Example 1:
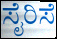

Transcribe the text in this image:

ಸೈರಿಸೆ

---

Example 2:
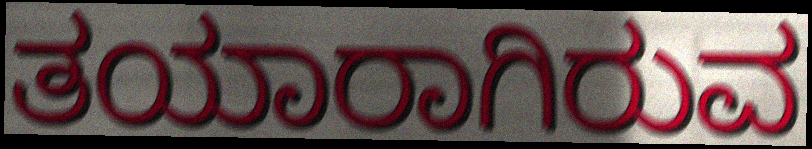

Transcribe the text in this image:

ತಯಾರಾಗಿರುವ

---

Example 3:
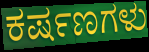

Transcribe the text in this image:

ಕರ್ಷಣಗಳು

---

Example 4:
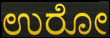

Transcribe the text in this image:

ಉರೋ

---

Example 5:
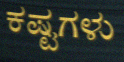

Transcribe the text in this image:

ಕಷ್ಟಗಳು